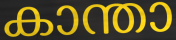
കാന്താ